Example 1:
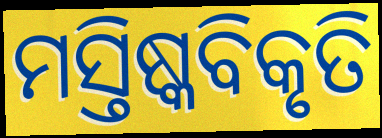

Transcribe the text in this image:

ମସ୍ତିଷ୍କବିକୃତି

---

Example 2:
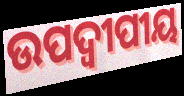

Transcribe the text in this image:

ଉପଦ୍ଵୀପୀୟ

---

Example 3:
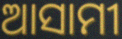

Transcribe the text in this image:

ଆସାମୀ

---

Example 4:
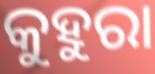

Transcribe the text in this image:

କୁହୁରା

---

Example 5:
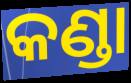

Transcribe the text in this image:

କଣ୍ଡା